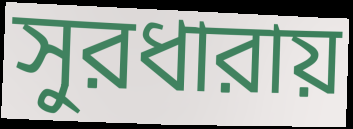
সুরধারায়